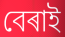
বেৰাই